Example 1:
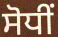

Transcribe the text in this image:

ਸੋਧੀਂ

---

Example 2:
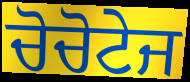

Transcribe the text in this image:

ਚੋਚੋਟੇਜ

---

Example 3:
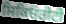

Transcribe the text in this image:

ਸਿਕਿਓਰੀਟੀ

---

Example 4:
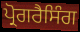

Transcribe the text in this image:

ਪ੍ਰੋਗਰੈਸਿੰਗ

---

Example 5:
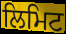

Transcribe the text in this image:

ਲਿਮਿਟ